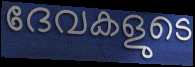
ദേവകളുടെ